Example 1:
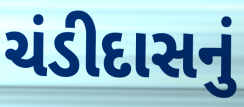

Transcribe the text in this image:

ચંડીદાસનું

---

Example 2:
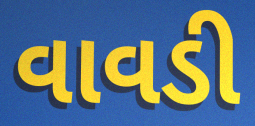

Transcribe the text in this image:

વાવડી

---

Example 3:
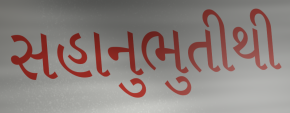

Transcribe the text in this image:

સહાનુભુતીથી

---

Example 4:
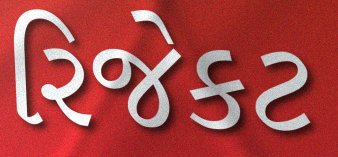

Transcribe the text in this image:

રિજેકટ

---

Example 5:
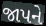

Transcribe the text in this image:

જાપને